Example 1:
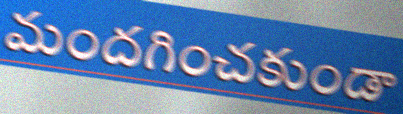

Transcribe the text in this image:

మందగించకుండా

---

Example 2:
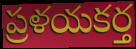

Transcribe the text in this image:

ప్రళయకర్త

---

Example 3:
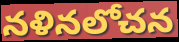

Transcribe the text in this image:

నళినలోచన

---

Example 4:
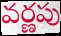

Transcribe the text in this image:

వర్ణపు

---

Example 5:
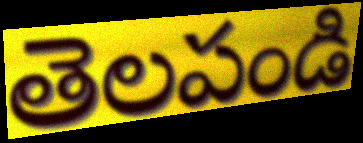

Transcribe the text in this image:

తెలపండి